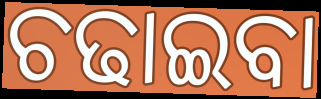
ଚଢାଇବା